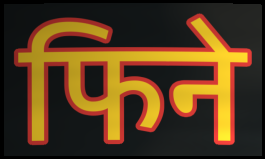
फिने